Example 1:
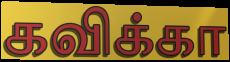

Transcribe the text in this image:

கவிக்கா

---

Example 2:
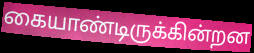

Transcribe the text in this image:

கையாண்டிருக்கின்றன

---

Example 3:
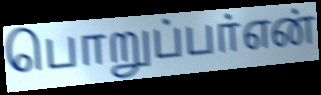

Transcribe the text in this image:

பொறுப்பர்என்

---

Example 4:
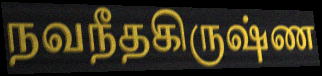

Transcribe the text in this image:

நவநீதகிருஷ்ண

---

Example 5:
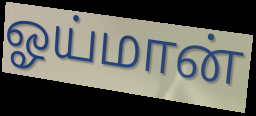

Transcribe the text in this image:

ஓய்மான்